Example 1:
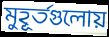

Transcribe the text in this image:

মুহূর্তগুলোয়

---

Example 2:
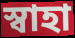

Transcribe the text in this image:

স্বাহা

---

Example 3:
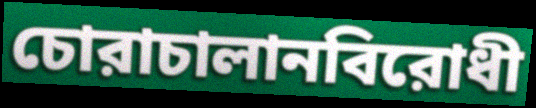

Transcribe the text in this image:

চোরাচালানবিরোধী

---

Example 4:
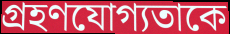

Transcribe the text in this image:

গ্রহণযোগ্যতাকে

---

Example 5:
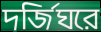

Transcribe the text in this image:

দর্জিঘরে